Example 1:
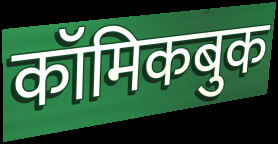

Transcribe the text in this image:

कॉमिकबुक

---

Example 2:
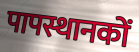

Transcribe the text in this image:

पापस्थानकों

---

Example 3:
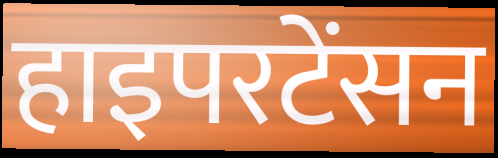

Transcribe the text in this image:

हाइपरटेंसन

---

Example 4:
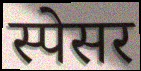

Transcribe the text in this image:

स्पेसर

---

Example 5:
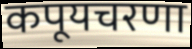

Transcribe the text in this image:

कपूयचरणा